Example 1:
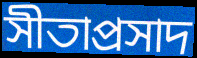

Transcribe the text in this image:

সীতাপ্রসাদ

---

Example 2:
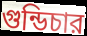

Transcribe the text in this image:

গুন্ডিচার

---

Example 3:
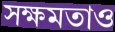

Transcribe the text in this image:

সক্ষমতাও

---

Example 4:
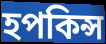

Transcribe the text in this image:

হপকিন্স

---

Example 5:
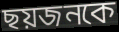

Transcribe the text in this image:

ছয়জনকে